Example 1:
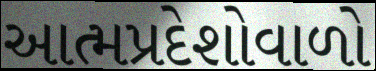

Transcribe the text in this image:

આત્મપ્રદેશોવાળો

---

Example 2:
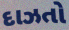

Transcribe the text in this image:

દાઝતો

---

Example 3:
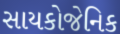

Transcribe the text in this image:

સાયકોજેનિક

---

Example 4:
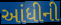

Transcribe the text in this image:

આંધીની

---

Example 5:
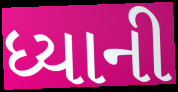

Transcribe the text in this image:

ધ્યાની